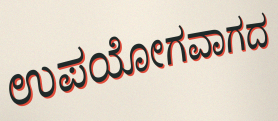
ಉಪಯೋಗವಾಗದ